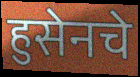
हुसेनचे